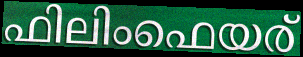
ഫിലിംഫെയര്